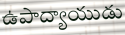
ఉపాద్యాయుడు